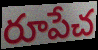
రూపేచ